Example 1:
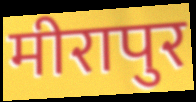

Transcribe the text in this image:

मीरापुर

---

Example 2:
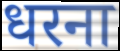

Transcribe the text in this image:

धरना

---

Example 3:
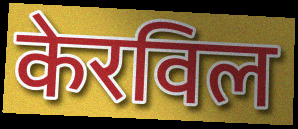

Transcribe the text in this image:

केरविल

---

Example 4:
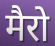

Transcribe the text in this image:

मैरो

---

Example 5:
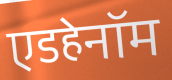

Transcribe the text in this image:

एडहेनॉम